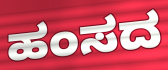
ಹಂಸದ